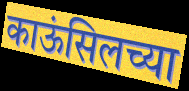
काऊंसिलच्या